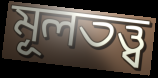
মূলতত্ত্ব